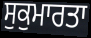
ਸੁਕੁਮਾਰਤਾ